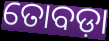
ତୋବଡ଼ା